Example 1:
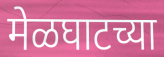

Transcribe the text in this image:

मेळघाटच्या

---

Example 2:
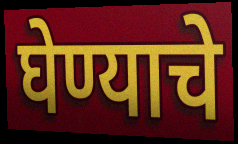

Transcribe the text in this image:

घेण्याचे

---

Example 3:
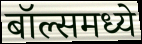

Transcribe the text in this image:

बॉल्समध्ये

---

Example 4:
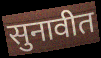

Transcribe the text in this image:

सुनावीत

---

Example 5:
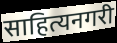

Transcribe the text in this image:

साहित्यनगरी